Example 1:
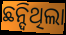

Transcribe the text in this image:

ଛନ୍ଦିଥିଲା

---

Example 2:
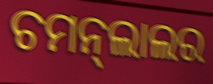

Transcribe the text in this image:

ଚମନ୍‍ଲାଲର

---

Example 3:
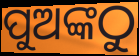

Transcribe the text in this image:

ପୁଅଙ୍କଠୁ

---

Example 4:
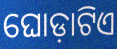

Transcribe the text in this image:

ଘୋଡ଼ାଟିଏ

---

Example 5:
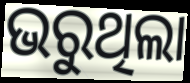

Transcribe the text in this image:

ଭରୁଥିଲା